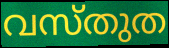
വസ്തുത